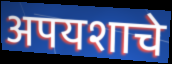
अपयशाचे